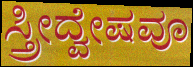
ಸ್ತ್ರೀದ್ವೇಷವೂ